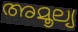
അമൂല്യ